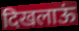
दिखलाऊं